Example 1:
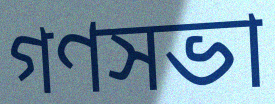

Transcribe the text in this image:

গণসভা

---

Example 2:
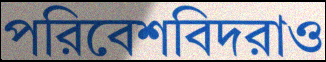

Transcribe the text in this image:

পরিবেশবিদরাও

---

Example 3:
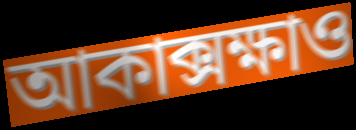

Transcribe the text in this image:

আকাক্সক্ষাও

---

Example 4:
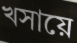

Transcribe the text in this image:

খসায়ে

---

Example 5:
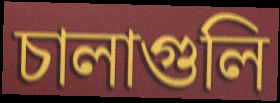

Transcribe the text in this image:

চালাগুলি